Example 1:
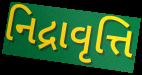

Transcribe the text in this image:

નિદ્રાવૃત્તિ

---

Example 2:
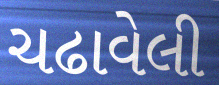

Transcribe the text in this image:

ચઢાવેલી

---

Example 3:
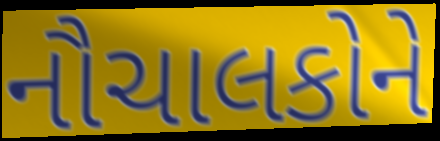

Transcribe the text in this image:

નૌચાલકોને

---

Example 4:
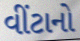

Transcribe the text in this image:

વીંટાનો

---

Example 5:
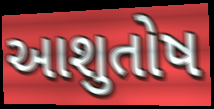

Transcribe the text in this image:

આશુતોષ